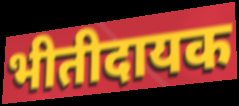
भीतीदायक